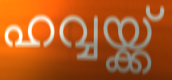
ഹവ്വയ്ക്ക്